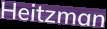
Heitzman